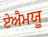
ਏਐਮਯੂ